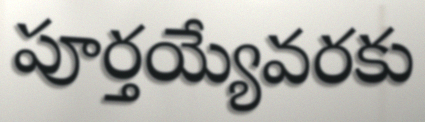
పూర్తయ్యేవరకు